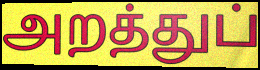
அறத்துப்